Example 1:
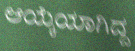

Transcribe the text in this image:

ಆಯ್ಕೆಯಾಗಿದ್ದ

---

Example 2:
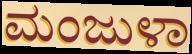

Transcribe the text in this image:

ಮಂಜುಳಾ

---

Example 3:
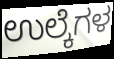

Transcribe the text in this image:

ಉಲ್ಕೆಗಳ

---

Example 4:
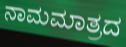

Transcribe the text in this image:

ನಾಮಮಾತ್ರದ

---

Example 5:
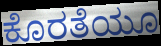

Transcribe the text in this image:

ಕೊರತೆಯೂ